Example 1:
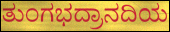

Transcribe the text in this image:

ತುಂಗಭದ್ರಾನದಿಯ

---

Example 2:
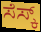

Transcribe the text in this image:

ಸೆಸ್ಕ್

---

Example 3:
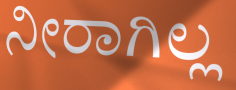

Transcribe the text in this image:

ನೀರಾಗಿಲ್ಲ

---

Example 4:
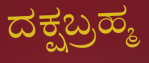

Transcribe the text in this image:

ದಕ್ಷಬ್ರಹ್ಮ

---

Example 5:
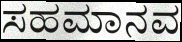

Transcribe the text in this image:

ಸಹಮಾನವ